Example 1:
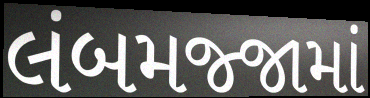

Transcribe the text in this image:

લંબમજ્જામાં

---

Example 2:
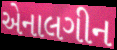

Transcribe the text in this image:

એનાલગીન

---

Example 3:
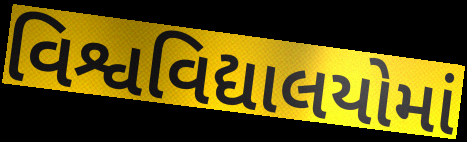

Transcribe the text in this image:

વિશ્વવિદ્યાલયોમાં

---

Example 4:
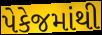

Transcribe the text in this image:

પેકેજમાંથી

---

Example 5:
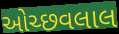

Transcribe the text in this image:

ઓચ્છવલાલ